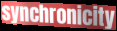
synchronicity